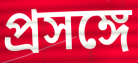
প্রসঙ্গে